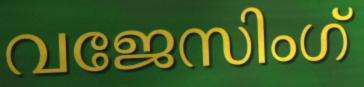
വജേസിംഗ്